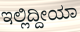
ಇಲ್ಲಿದ್ದೀಯಾ